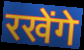
रखेंगे